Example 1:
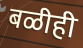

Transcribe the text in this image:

बळीही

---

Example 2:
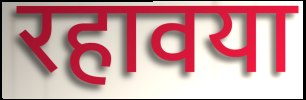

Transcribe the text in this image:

रहावया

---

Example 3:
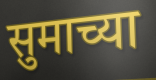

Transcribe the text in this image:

सुमाच्या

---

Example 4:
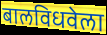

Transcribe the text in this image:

बालविधवेला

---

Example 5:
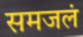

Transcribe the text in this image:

समजलं